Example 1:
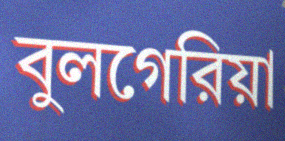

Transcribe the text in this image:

বুলগেরিয়া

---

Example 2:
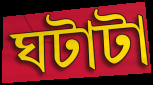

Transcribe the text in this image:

ঘটাটা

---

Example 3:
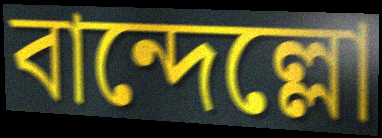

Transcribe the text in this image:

বান্দেল্লো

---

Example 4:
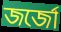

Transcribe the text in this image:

জর্জো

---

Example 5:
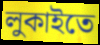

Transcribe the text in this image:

লুকাইতে